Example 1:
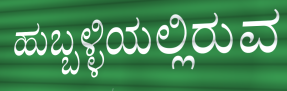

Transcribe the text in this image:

ಹುಬ್ಬಳ್ಳಿಯಲ್ಲಿರುವ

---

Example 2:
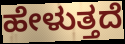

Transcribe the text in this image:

ಹೇಳುತ್ತದೆ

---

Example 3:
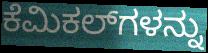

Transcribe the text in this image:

ಕೆಮಿಕಲ್‌ಗಳನ್ನು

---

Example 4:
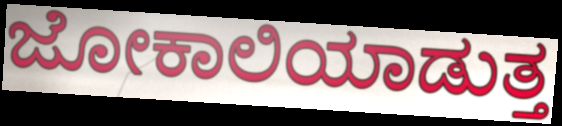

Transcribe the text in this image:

ಜೋಕಾಲಿಯಾಡುತ್ತ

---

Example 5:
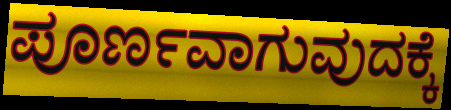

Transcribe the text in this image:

ಪೂರ್ಣವಾಗುವುದಕ್ಕೆ